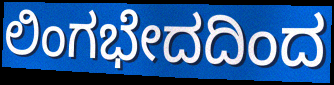
ಲಿಂಗಭೇದದಿಂದ